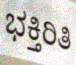
ಭಕ್ತಿರಿತಿ